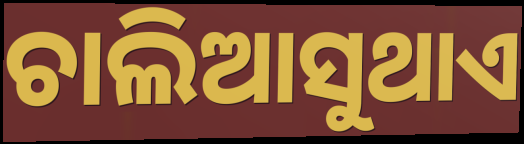
ଚାଲିଆସୁଥାଏ